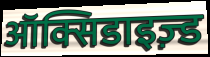
ऑक्सिडाइज़्ड